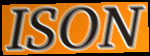
ISON